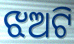
ଝଅଟି